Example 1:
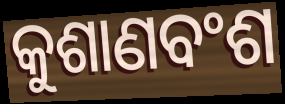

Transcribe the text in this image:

କୁଶାଣବଂଶ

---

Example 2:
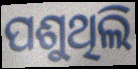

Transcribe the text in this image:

ପଶୁଥିଲି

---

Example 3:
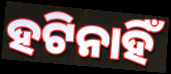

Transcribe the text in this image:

ହଟିନାହିଁ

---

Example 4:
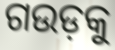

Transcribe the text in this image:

ଗଉଡ଼କୁ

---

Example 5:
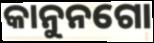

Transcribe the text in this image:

କାନୁନଗୋ